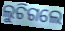
ଲୁଚିଗଲେ